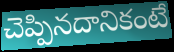
చెప్పినదానికంటే